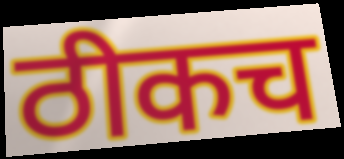
ठीकच